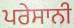
ਪਰੇਸਾਨੀ